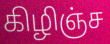
கிழிஞ்ச